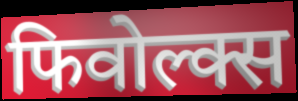
फिवोल्क्स